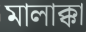
মালাক্কা